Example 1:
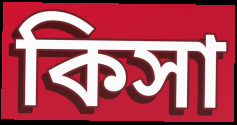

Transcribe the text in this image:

কিসা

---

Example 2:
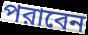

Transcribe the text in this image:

পরাবেন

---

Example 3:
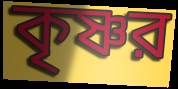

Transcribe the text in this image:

কৃষ্ণর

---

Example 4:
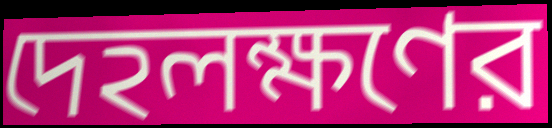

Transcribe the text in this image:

দেহলক্ষণের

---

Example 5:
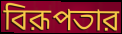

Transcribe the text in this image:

বিরূপতার